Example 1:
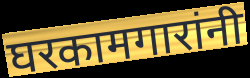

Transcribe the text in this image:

घरकामगारांनी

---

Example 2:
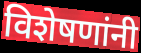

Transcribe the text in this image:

विशेषणांनी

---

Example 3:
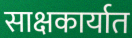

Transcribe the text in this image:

साक्षकार्यात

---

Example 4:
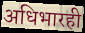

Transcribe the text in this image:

अधिभारही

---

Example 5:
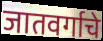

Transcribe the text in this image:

जातवर्गाचे